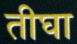
तीघा